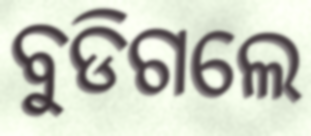
ବୁଡିଗଲେ